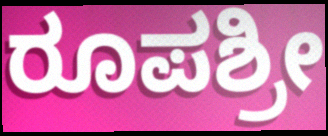
ರೂಪಶ್ರೀ